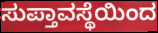
ಸುಪ್ತಾವಸ್ಥೆಯಿಂದ